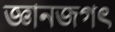
জ্ঞানজগৎ